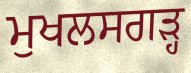
ਮੁਖਲਸਗੜ੍ਹ